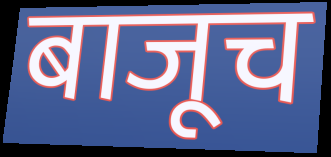
बाजूच